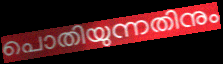
പൊതിയുന്നതിനും